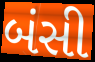
બંસી